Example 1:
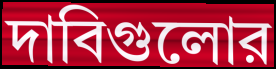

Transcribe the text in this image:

দাবিগুলোর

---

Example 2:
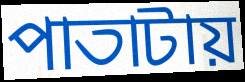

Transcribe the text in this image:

পাতাটায়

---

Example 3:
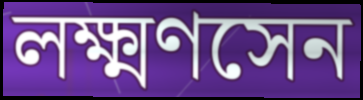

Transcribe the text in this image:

লক্ষ্মণসেন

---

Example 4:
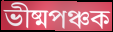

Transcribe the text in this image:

ভীষ্মপঞ্চক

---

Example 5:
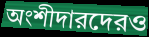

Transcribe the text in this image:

অংশীদারদেরও